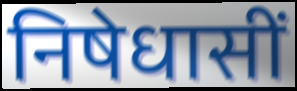
निषेधासीं